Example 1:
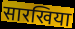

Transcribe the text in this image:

सारखिया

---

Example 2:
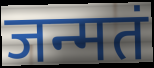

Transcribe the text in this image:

जन्मतं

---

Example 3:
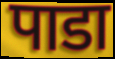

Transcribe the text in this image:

पाडा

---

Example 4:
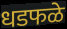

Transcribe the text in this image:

धडफळे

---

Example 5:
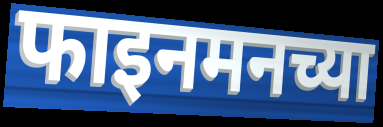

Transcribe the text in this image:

फाइनमनच्या